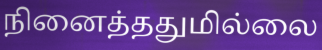
நினைத்ததுமில்லை